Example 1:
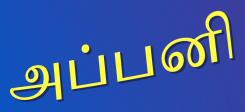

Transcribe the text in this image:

அப்பனி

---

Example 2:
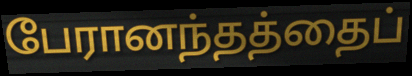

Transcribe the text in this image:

பேரானந்தத்தைப்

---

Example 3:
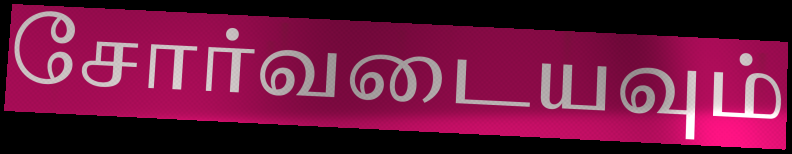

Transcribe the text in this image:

சோர்வடையவும்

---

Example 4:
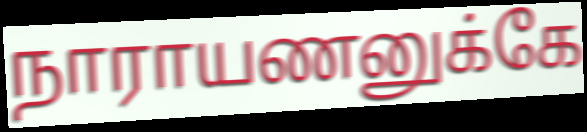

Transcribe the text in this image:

நாராயணனுக்கே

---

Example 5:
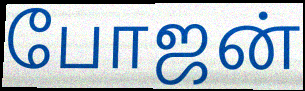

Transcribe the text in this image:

போஜன்